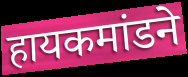
हायकमांडने